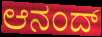
ಆನಂದ್